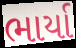
ભાર્યા